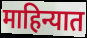
माहिन्यात